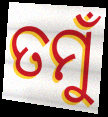
ତମୁଁ